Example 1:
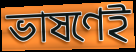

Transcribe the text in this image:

ভাষণেই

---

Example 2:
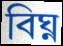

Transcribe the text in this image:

বিঘ্ন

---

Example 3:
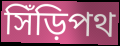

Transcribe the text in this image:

সিঁড়িপথ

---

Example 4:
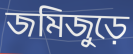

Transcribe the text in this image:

জমিজুড়ে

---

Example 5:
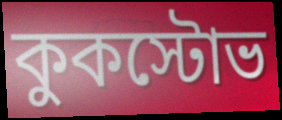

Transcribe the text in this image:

কুকস্টোভ